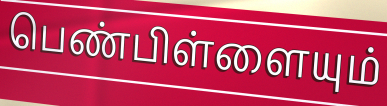
பெண்பிள்ளையும்